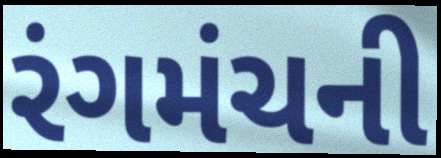
રંગમંચની